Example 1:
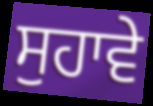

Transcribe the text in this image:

ਸੁਹਾਵੇ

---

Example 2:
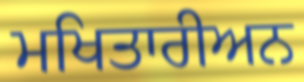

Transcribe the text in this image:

ਮਖਿਤਾਰੀਅਨ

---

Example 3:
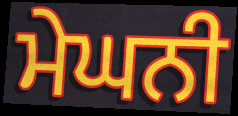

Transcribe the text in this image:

ਮੇਘਨੀ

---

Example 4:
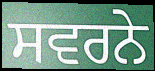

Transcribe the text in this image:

ਸਵਰਨੇ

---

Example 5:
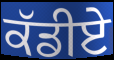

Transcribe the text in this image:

ਕੱਡੀਏ